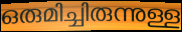
ഒരുമിച്ചിരുന്നുള്ള